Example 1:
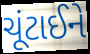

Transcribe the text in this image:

ચૂંટાઈને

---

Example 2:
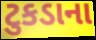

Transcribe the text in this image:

ટુકડાના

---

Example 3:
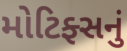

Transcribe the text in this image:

મોટિફ્સનું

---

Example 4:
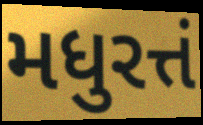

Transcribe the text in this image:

મધુરત્તં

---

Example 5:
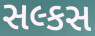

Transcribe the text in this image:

સલ્કસ